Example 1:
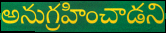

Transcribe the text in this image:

అనుగ్రహించాడని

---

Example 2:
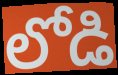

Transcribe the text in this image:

లోడి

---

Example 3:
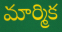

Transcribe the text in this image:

మార్మిక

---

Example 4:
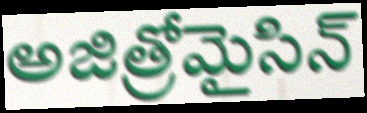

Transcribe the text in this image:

అజిత్రోమైసిన్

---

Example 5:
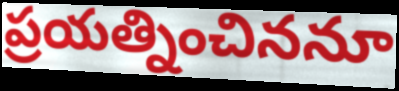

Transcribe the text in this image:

ప్రయత్నించిననూ